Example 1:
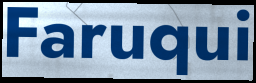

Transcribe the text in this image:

Faruqui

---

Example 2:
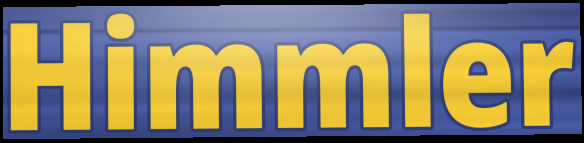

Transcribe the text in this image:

Himmler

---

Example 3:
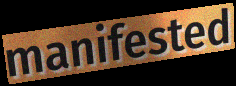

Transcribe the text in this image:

manifested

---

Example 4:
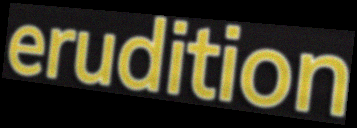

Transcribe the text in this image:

erudition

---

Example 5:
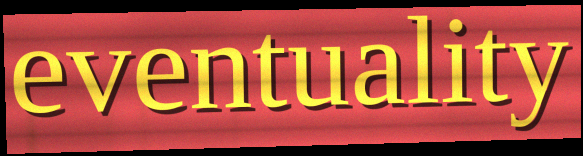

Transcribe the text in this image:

eventuality